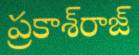
ప్రకాశ్‌రాజ్